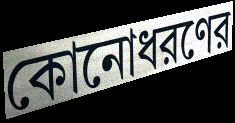
কোনোধরণের